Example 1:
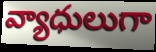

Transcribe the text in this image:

వ్యాధులుగా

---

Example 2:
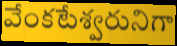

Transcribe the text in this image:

వేంకటేశ్వరునిగా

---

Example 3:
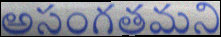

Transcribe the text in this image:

అసంగతమని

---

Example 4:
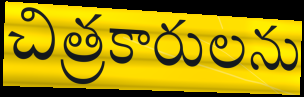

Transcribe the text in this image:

చిత్రకారులను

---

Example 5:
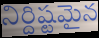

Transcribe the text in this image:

నిర్దిష్టమైన